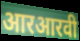
आरआरवी